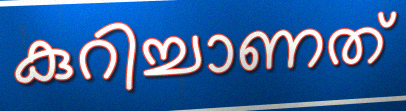
കുറിച്ചാണത്